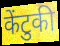
केंटुकी